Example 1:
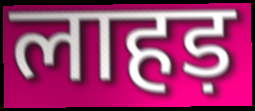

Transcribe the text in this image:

लाहड़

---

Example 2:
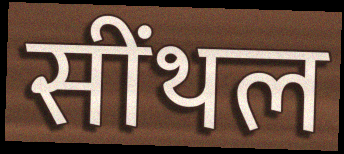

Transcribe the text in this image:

सींथल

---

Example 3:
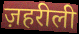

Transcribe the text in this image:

ज़हरीली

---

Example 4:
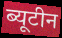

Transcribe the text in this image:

ब्यूटीन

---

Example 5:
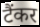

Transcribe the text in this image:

टैंकर